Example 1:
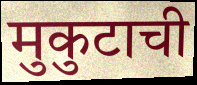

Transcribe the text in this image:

मुकुटाची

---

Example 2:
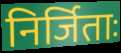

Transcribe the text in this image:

निर्जिताः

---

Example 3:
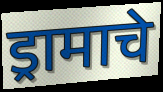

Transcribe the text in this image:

ड्रामाचे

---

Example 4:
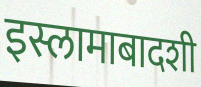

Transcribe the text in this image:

इस्लामाबादशी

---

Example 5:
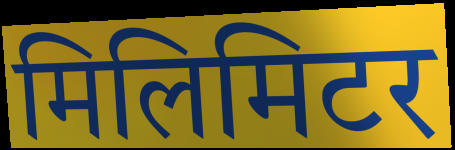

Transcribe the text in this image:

मिलिमिटर